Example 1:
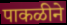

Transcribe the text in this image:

पाकळीने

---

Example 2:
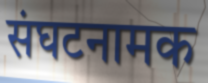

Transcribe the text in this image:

संघटनामक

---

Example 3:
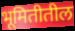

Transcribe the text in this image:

भूमितीतील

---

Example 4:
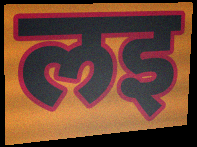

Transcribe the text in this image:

लइ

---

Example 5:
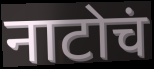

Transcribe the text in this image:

नाटोचं